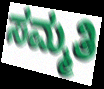
ಸಮ್ಮತಿ